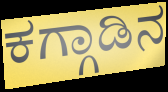
ಕಗ್ಗಾಡಿನ